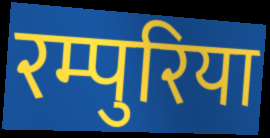
रम्पुरिया